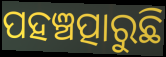
ପହଞ୍ଚତ୍ପାରୁଛି